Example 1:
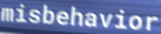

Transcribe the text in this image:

misbehavior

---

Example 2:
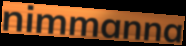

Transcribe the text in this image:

nimmanna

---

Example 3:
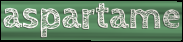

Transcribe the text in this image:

aspartame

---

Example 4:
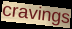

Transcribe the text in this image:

cravings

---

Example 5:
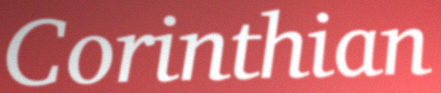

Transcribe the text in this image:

Corinthian